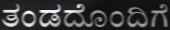
ತಂಡದೊಂದಿಗೆ